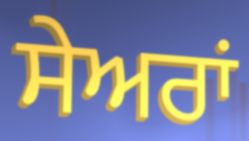
ਸੇਅਰਾਂ